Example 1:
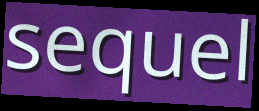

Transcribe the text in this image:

sequel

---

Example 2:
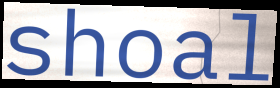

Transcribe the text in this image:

shoal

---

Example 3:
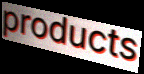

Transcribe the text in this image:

products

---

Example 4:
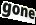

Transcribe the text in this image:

gone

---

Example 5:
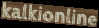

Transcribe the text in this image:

kalkionline